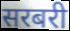
सरबरी